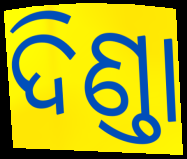
ଦିଣ୍ଡା